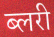
ब्लरी